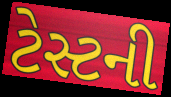
ટેસ્ટની